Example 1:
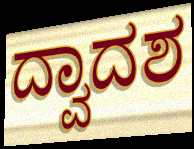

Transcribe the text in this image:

ದ್ವಾದಶ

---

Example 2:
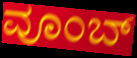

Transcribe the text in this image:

ವೂಂಬ್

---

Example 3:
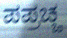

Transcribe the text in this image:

ಪಪ್ರಚ್ಚ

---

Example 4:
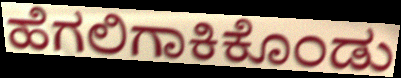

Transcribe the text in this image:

ಹೆಗಲಿಗಾಕಿಕೊಂಡು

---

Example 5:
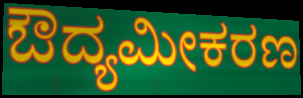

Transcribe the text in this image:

ಔದ್ಯಮೀಕರಣ